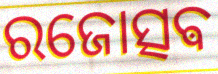
ରଜୋତ୍ସଵ